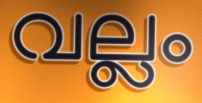
വല്ലം